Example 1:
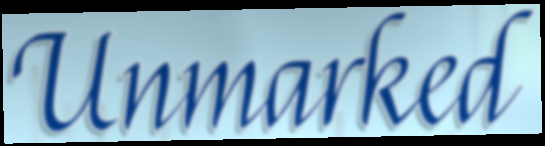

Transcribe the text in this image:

Unmarked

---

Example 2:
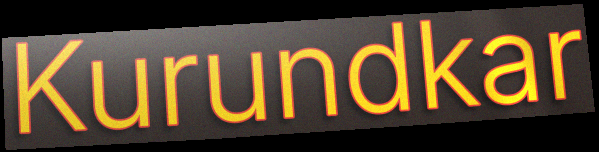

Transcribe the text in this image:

Kurundkar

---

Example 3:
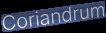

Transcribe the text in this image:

Coriandrum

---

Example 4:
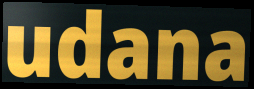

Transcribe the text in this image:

udana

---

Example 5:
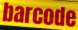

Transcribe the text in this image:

barcode